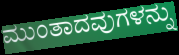
ಮುಂತಾದವುಗಳನ್ನು